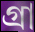
গ্ৰা